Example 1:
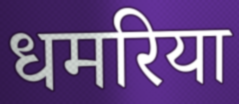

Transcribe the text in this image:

धमरिया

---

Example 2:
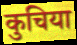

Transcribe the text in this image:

कुचिया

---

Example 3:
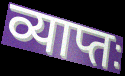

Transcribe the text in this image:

व्याप्तः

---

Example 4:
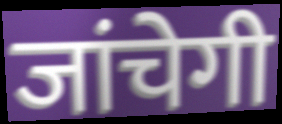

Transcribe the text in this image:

जांचेगी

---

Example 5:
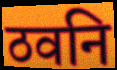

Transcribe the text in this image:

ठवनि